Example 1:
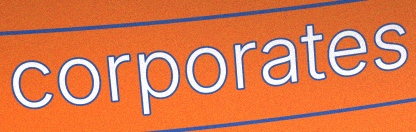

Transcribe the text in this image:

corporates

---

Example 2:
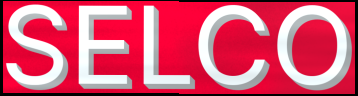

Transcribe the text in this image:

SELCO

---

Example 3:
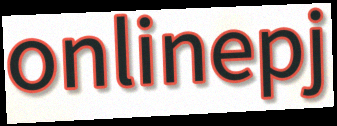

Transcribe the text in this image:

onlinepj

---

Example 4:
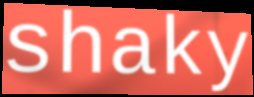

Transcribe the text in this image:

shaky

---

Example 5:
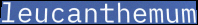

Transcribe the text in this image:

leucanthemum